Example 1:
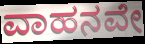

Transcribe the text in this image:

ವಾಹನವೇ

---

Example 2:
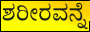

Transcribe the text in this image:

ಶರೀರವನ್ನೆ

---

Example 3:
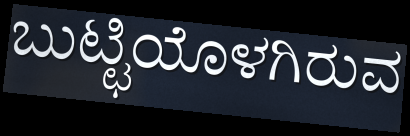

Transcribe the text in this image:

ಬುಟ್ಟಿಯೊಳಗಿರುವ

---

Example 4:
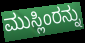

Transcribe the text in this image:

ಮುಸ್ಲಿಂರನ್ನು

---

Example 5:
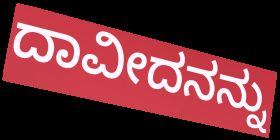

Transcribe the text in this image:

ದಾವೀದನನ್ನು